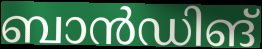
ബാൻഡിങ്